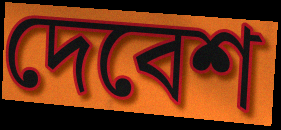
দেবেশ